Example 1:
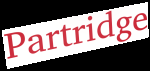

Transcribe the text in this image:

Partridge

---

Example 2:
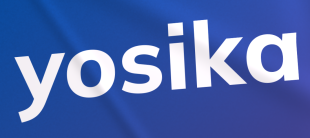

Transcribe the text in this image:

yosika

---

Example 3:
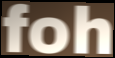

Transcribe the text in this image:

foh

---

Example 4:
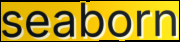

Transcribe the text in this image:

seaborn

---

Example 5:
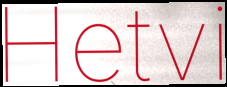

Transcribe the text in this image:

Hetvi